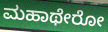
ಮಹಾಥೇರೋ